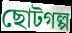
ছোটগল্প